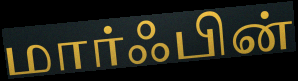
மார்ஃபின்